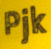
Pjk